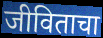
जीविताचा